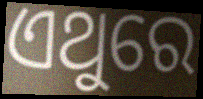
ଏଥୁରେ